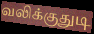
வலிக்குதுடி